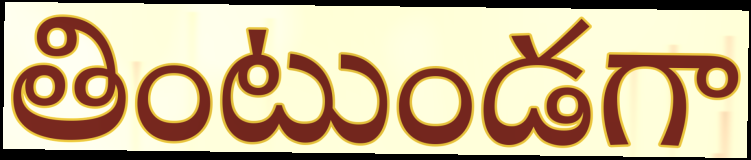
తింటుండగా